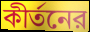
কীর্তনের